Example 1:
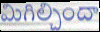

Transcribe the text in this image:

మిగిల్చిందా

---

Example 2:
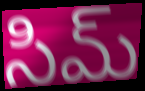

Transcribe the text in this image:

సిమ్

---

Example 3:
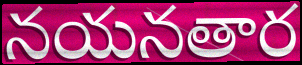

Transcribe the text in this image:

నయనతార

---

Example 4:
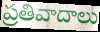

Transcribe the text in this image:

ప్రతివాదాలు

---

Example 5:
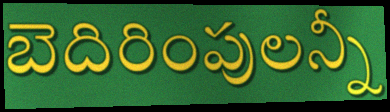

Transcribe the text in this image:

బెదిరింపులన్నీ